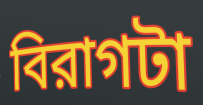
বিরাগটা